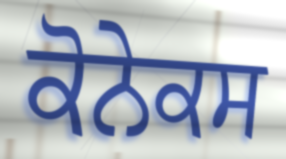
ਕੋਨੇਕਸ